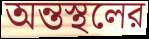
অন্তস্থলের